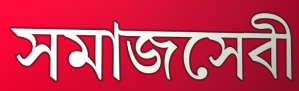
সমাজসেবী